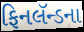
ફિનલૅન્ડના